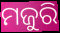
ମଜୁରି